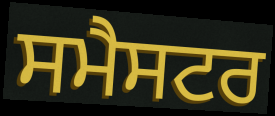
ਸਮੈਸਟਰ